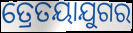
ତ୍ରେତୟାଯୁଗର